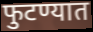
फुटण्यात